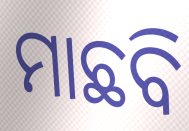
ମାଛବି